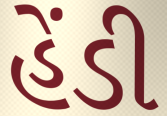
હેંડી